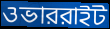
ওভাররাইট